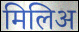
मिलिअ